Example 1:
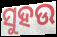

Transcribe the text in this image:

ସୁହଉ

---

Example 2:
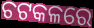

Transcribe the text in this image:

ଚଟକଳରେ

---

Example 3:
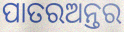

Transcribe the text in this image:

ପାତରଅନ୍ତର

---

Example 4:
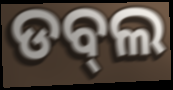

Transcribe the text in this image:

ଡବ୍‌ଲ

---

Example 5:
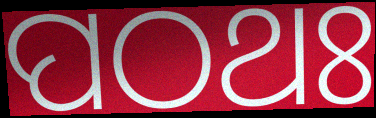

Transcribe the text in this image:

ପଠଥଃ